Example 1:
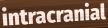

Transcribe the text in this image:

intracranial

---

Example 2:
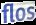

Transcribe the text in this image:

flos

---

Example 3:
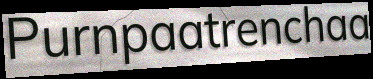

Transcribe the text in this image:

Purnpaatrenchaa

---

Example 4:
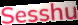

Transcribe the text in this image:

Sesshu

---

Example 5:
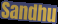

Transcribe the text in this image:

Sandhu